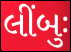
લીંબુઃ